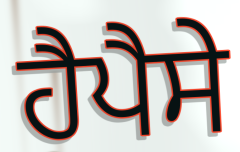
ਹੈਪੈਸੇ